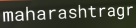
maharashtragr